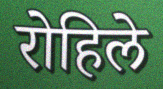
रोहिले